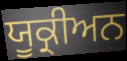
ਯੂਕ੍ਰੀਅਨ